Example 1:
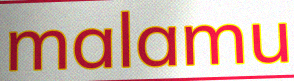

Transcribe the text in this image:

malamu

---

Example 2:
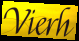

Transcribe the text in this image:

Vierh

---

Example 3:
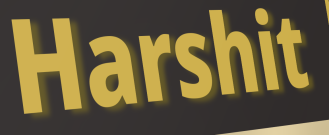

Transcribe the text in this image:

Harshit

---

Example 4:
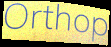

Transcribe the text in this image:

Orthop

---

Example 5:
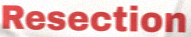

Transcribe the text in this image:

Resection